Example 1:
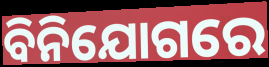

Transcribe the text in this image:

ବିନିଯୋଗରେ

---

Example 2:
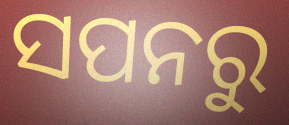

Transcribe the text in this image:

ସପନରୁ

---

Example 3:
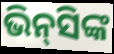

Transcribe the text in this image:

ଭିନ୍‍ସିଙ୍କ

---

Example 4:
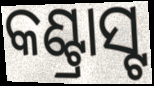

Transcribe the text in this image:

କଣ୍ଟ୍ରାସ୍ଟ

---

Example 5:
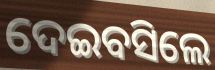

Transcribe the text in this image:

ଦେଇବସିଲେ